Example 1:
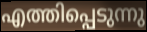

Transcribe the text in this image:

എത്തിപ്പെടുന്നു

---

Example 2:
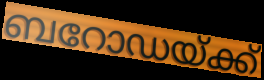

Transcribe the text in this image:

ബറോഡയ്ക്ക്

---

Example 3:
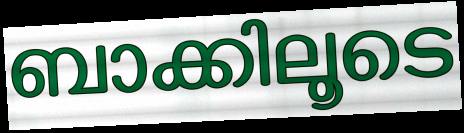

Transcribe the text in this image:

ബാക്കിലൂടെ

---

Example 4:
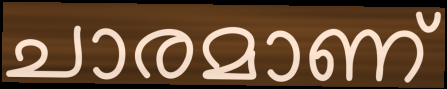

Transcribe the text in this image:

ചാരമാണ്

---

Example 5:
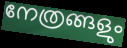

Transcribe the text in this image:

നേത്രങ്ങളും